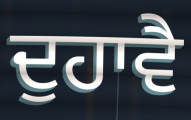
ਦੁਹਾਵੈ